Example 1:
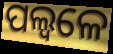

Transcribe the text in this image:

ପଲ୍ୱଳେ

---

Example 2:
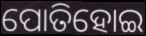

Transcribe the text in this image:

ପୋତିହୋଇ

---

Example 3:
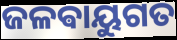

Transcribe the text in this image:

ଜଳଵାୟୁଗତ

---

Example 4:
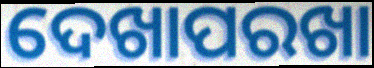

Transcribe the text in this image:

ଦେଖାପରଖା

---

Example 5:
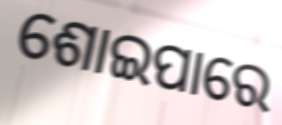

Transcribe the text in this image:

ଶୋଇପାରେ